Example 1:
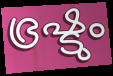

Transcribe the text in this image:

ഭ്രഷ്ടും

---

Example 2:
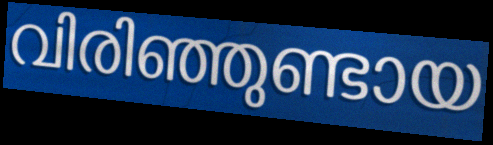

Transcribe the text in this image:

വിരിഞ്ഞുണ്ടായ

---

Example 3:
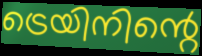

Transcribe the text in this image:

ട്രെയിനിന്റെ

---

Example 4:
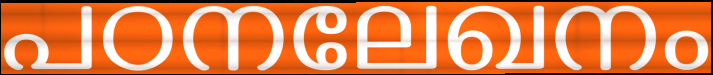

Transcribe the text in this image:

പഠനലേഖനം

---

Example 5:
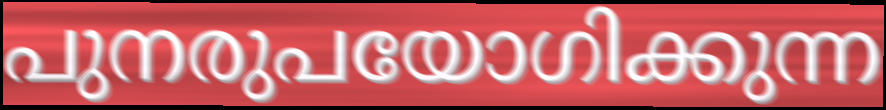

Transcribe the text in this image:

പുനരുപയോഗിക്കുന്ന